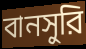
বানসুরি